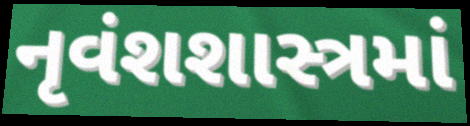
નૃવંશશાસ્ત્રમાં